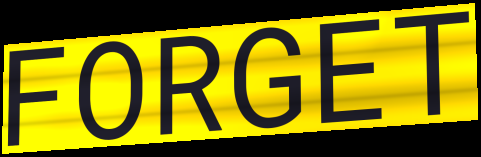
FORGET